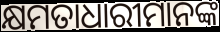
କ୍ଷମତାଧାରୀମାନଙ୍କ